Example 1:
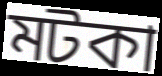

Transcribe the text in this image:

মটকা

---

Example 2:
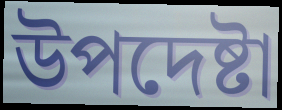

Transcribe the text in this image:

উপদেষ্টা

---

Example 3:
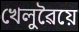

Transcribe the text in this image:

খেলুৱৈয়ে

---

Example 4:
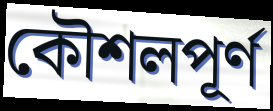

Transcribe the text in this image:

কৌশলপূৰ্ণ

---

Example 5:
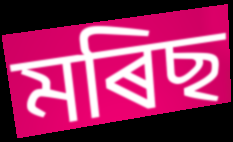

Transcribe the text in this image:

মৰিছ